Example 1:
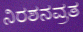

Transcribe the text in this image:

ನಿರಶನವ್ರತ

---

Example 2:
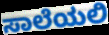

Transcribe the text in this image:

ಸಾಲೆಯಲಿ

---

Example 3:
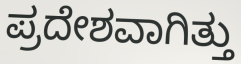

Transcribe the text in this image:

ಪ್ರದೇಶವಾಗಿತ್ತು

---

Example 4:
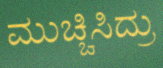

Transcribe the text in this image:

ಮುಚ್ಚಿಸಿದ್ರು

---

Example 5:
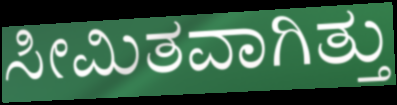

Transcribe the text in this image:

ಸೀಮಿತವಾಗಿತ್ತು